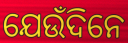
ଯେଉଁଦିନେ